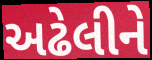
અઢેલીને